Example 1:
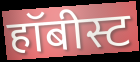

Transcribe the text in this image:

हॉबीस्ट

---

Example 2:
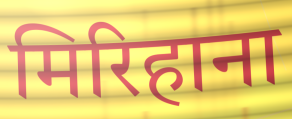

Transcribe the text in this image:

मिरिहाना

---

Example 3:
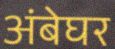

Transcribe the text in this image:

अंबेघर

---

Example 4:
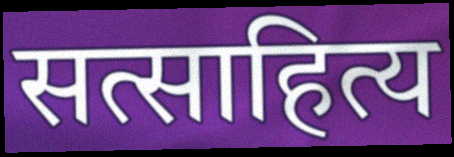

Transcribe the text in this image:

सत्साहित्य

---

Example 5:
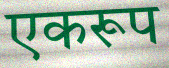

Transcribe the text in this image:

एकरूप